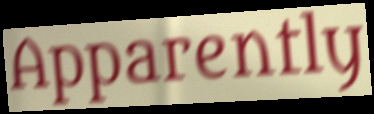
Apparently